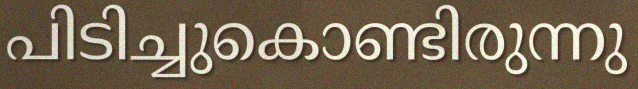
പിടിച്ചുകൊണ്ടിരുന്നു